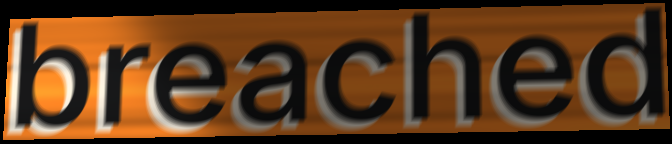
breached